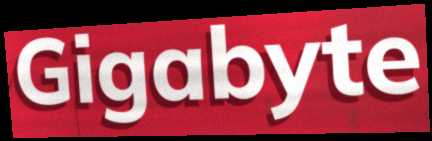
Gigabyte